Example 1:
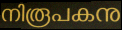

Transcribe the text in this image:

നിരൂപകനു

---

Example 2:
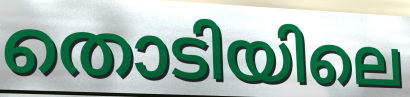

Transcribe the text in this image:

തൊടിയിലെ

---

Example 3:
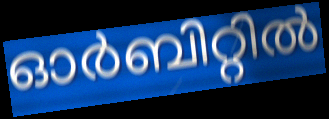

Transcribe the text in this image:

ഓർബിറ്റിൽ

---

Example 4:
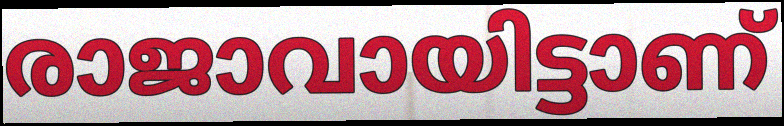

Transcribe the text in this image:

രാജാവായിട്ടാണ്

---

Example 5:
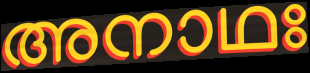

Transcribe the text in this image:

അനാഥഃ